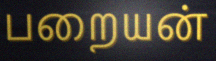
பறையன்